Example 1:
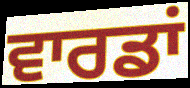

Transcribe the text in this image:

ਵਾਰਡਾਂ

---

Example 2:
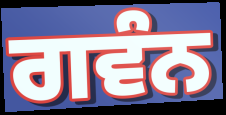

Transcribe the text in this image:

ਗਵੰਨ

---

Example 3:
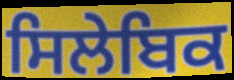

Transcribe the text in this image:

ਸਿਲੇਬਿਕ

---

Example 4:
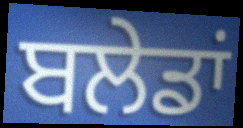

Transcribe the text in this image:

ਬਲੇਡਾਂ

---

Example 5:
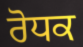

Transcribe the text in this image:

ਰੋਧਕ